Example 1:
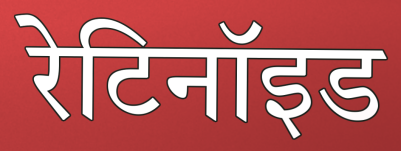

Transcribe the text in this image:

रेटिनॉइड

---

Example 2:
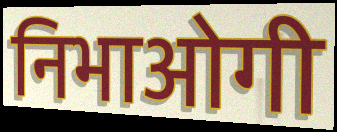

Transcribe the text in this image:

निभाओगी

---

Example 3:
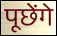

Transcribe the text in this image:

पूछेंगे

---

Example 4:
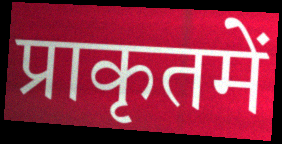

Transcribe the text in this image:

प्राकृतमें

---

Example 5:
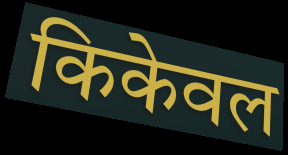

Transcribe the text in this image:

किकेवल